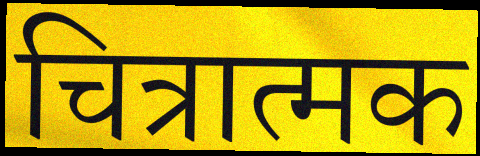
चित्रात्मक